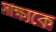
সাক্ষ্যকে